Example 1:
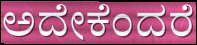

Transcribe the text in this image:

ಅದೇಕೆಂದರೆ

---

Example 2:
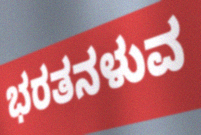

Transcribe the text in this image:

ಭರತನಳುವ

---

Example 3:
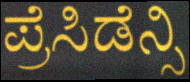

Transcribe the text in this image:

ಪ್ರೆಸಿಡೆನ್ಸಿ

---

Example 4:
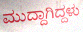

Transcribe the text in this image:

ಮುದ್ದಾಗಿದ್ದಳು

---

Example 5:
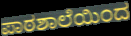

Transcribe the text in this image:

ಪಾಠಶಾಲೆಯಿಂದ